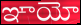
ఞాయో